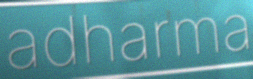
adharma